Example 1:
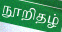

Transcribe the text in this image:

நூறிதழ்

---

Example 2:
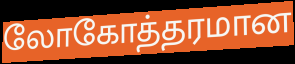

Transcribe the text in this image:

லோகோத்தரமான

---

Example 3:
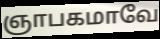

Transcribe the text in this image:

ஞாபகமாவே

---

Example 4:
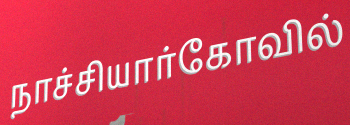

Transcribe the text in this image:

நாச்சியார்கோவில்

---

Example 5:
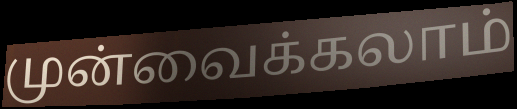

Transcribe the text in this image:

முன்வைக்கலாம்